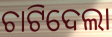
ଚାଟିଦେଲା